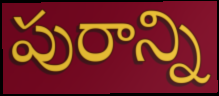
పురాన్ని